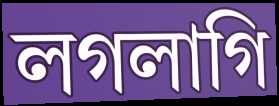
লগলাগি